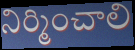
నిర్మించాలి